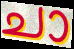
ചാ